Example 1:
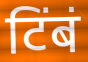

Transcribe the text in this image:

टिंबं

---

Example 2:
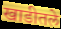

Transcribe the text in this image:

खाडीतले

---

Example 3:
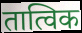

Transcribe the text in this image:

तात्विक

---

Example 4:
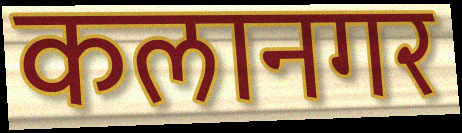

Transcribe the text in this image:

कलानगर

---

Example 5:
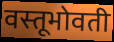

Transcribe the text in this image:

वस्तूभोवती